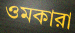
ওমকারা